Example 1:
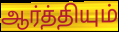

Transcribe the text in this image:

ஆர்த்தியும்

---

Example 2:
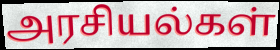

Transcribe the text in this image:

அரசியல்கள்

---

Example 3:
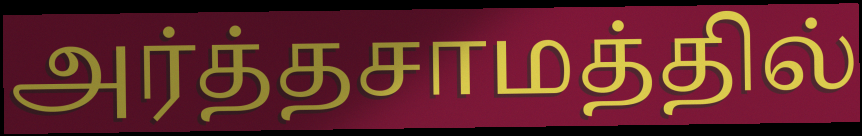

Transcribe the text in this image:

அர்த்தசாமத்தில்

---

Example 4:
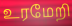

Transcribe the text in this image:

உரமேறி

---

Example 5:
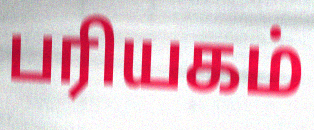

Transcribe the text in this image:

பரியகம்